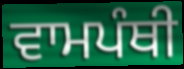
ਵਾਮਪੰਥੀ